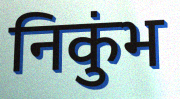
निकुंभ